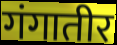
गंगातीर